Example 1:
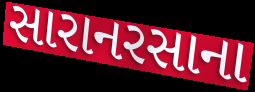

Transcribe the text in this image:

સારાનરસાના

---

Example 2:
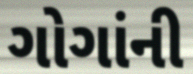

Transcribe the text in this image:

ગોગાંની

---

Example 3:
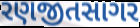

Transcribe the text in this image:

રણજીતસાગર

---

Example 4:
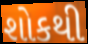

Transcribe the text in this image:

શોકથી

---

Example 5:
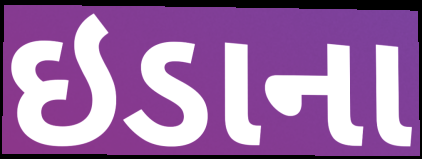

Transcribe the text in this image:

ઇડાના